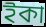
ইকা